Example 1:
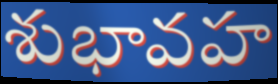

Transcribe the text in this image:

శుభావహ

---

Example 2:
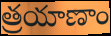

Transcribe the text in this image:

త్రయాణాం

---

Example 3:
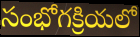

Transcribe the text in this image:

సంభోగక్రియలో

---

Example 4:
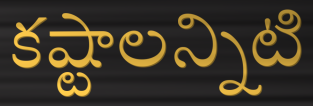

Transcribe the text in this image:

కష్టాలన్నిటి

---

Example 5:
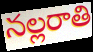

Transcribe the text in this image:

నల్లరాతి